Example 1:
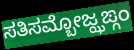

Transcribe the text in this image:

ಸತಿಸಮ್ಬೋಜ್ಝಙ್ಗಂ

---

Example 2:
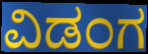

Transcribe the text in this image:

ವಿಡಂಗ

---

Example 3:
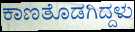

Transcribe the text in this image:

ಕಾಣತೊಡಗಿದ್ದಳು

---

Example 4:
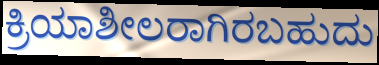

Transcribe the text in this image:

ಕ್ರಿಯಾಶೀಲರಾಗಿರಬಹುದು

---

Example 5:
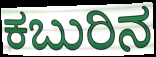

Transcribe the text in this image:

ಕಬುರಿನ